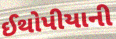
ઈથોપીયાની